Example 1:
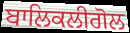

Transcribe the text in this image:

ਬਾਲਿਕਲੀਗੋਲ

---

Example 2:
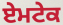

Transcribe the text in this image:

ਏਮਟੇਕ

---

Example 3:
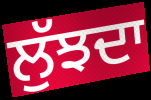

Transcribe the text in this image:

ਲੁੱਝਦਾ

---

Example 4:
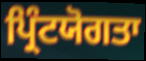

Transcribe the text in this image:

ਪ੍ਰਿੰਟਯੋਗਤਾ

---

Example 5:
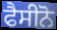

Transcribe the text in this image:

ਫੈਸੀਨੋ